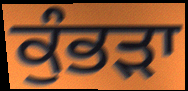
ਕੁੰਭੜਾ